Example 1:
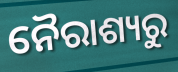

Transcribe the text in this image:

ନୈରାଶ୍ୟରୁ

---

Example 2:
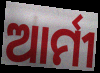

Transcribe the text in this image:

ଆର୍ମୀ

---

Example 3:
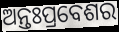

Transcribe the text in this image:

ଅନ୍ତଃପ୍ରବେଶର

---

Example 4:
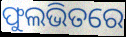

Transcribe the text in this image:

ଫୁଲଭିତରେ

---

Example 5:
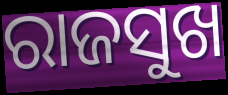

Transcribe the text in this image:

ରାଜସୁଖ